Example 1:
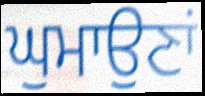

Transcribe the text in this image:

ਘੁਮਾਉਣਾਂ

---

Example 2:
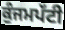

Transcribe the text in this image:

ਕੁੰਜਮਪੱਟੀ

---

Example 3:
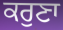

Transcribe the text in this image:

ਕਰੁਣਾ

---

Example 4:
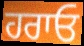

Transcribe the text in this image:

ਹਰਾਓ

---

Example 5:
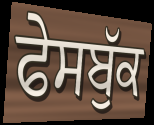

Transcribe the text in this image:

ਫੇਸਬੁੱਕ